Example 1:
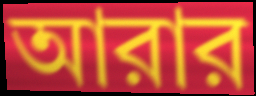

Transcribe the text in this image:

আরার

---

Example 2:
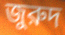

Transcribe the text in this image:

জুরুদ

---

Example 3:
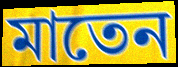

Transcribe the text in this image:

মাতেন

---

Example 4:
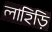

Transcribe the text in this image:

লাহিড়ি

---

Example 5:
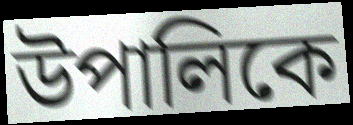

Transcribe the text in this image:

উপালিকে